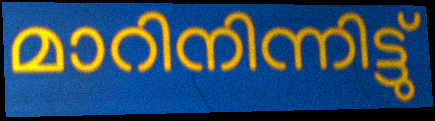
മാറിനിന്നിട്ടു്